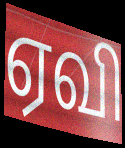
ஏவி